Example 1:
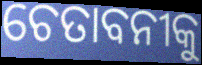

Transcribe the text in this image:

ଚେତାବନୀକୁ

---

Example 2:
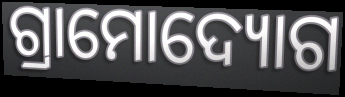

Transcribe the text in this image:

ଗ୍ରାମୋଦ୍ୟୋଗ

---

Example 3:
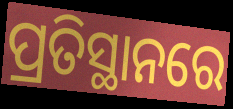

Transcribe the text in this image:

ପ୍ରତିସ୍ଥାନରେ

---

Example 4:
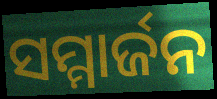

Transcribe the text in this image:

ସମ୍ମାର୍ଜନ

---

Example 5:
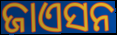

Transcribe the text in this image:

ଜାଏସନ